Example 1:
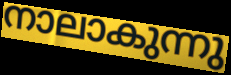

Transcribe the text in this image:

നാലാകുന്നു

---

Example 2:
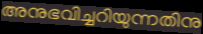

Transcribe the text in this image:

അനുഭവിച്ചറിയുന്നതിനു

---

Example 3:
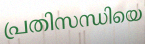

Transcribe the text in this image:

പ്രതിസന്ധിയെ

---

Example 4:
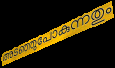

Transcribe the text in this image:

അടഞ്ഞുപോകുന്നതും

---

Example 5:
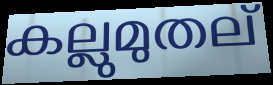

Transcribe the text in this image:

കല്ലുമുതല്